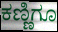
ಕಣ್ಣಿಗೂ